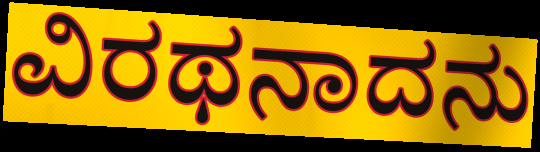
ವಿರಥನಾದನು